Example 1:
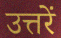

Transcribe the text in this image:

उत्तरें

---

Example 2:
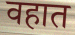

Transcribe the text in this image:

वहात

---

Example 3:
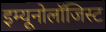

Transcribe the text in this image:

इम्यूनोलॉजिस्ट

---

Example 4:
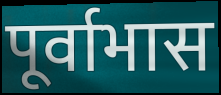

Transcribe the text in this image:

पूर्वाभास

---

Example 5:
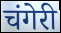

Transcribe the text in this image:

चंगेरी